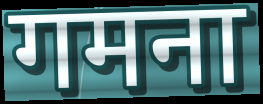
गमना